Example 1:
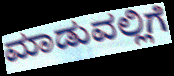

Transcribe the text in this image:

ಮಾಡುವಲ್ಲಿಗೆ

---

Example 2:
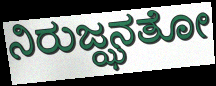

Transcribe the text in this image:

ನಿರುಜ್ಝನತೋ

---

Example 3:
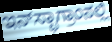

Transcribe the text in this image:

ಇನ್‌ಸ್ಟಾಗ್ರಾಂನಲ್ಲಿ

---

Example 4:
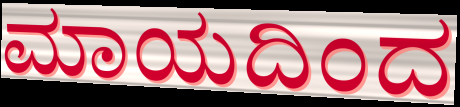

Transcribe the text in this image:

ಮಾಯದಿಂದ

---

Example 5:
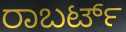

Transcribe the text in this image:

ರಾಬರ್ಟ್